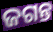
ଜଗନ୍ତ